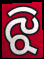
ଝି